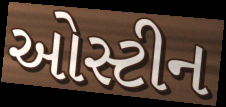
ઓસ્ટીન